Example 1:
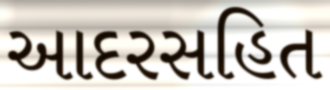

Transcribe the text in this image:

આદરસહિત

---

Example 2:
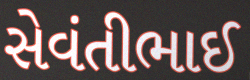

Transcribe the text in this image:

સેવંતીભાઈ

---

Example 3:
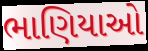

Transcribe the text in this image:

ભાણિયાઓ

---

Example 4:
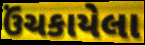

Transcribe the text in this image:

ઉંચકાયેલા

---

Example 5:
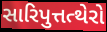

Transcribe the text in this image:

સારિપુત્તત્થેરો